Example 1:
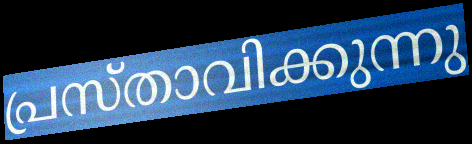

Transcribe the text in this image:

പ്രസ്താവിക്കുന്നു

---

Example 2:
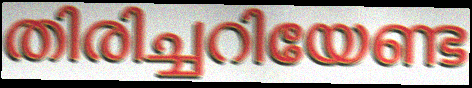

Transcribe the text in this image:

തിരിച്ചറിയേണ്ട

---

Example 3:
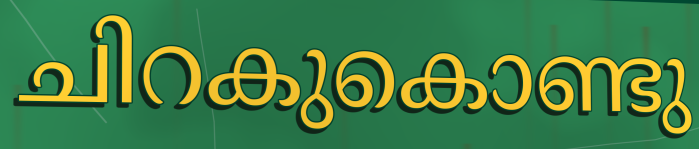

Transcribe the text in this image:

ചിറകുകൊണ്ടു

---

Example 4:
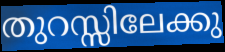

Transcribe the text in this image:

തുറസ്സിലേക്കു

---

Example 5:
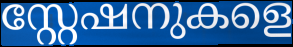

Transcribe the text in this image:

സ്റ്റേഷനുകളെ